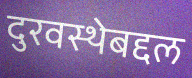
दुरवस्थेबद्दल